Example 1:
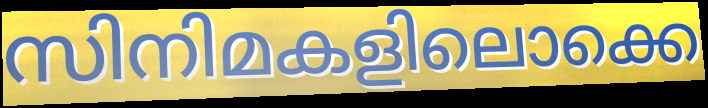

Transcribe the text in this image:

സിനിമകളിലൊക്കെ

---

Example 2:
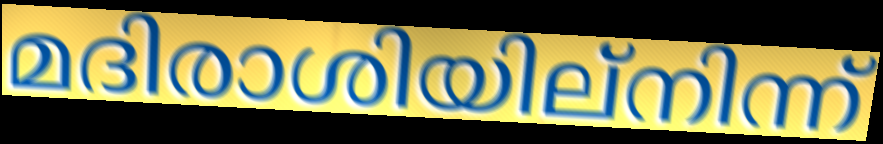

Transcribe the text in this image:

മദിരാശിയില്നിന്ന്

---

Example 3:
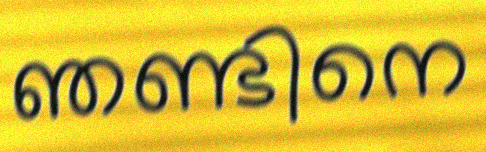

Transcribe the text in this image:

ഞണ്ടിനെ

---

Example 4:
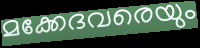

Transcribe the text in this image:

മക്കേദവരെയും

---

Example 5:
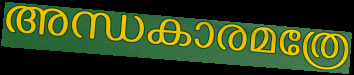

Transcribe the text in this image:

അന്ധകാരമത്രേ